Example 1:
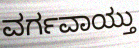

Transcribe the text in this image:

ವರ್ಗವಾಯ್ತು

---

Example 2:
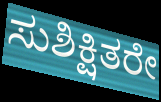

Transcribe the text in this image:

ಸುಶಿಕ್ಷಿತರೇ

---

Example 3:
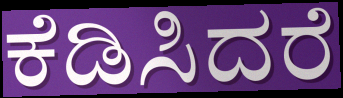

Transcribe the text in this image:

ಕೆಡಿಸಿದರೆ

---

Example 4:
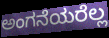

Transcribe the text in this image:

ಅಂಗನೆಯರೆಲ್ಲ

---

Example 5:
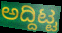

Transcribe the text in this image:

ಅದ್ದಿಟ್ಟ